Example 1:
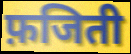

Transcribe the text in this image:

फ़जिती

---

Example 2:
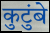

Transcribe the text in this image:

कुटुंबे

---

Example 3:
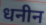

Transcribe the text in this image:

धनीन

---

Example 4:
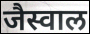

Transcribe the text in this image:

जैस्वाल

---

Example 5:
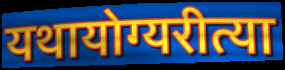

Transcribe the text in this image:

यथायोग्यरीत्या